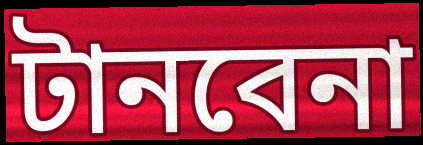
টানবেনা